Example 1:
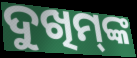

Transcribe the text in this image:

ଦୁଖିମ୍‌ଙ୍କ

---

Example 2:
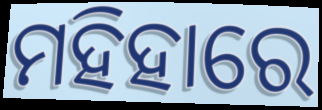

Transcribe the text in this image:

ମହିହାରେ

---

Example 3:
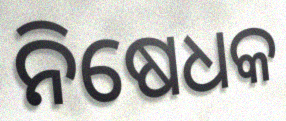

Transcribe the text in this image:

ନିଷେଧକ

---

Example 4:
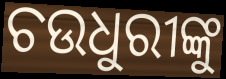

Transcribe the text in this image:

ଚଉଧୁରୀଙ୍କୁ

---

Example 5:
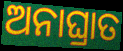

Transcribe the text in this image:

ଅନାଘ୍ରାତ